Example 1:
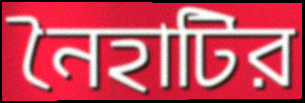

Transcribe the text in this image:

নৈহাটির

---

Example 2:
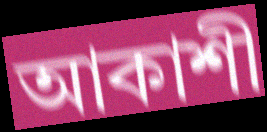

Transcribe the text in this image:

আকাশী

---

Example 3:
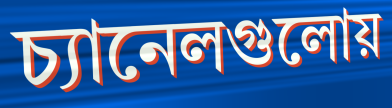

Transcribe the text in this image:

চ্যানেলগুলোয়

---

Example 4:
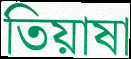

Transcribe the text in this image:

তিয়াষা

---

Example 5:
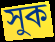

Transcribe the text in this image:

সুক